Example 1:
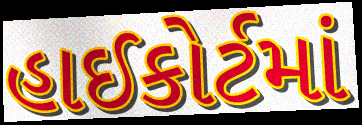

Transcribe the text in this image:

હાઈકોર્ટમાં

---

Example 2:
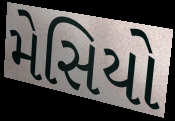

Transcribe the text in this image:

મેસિયો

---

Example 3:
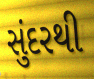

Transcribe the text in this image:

સુંદરથી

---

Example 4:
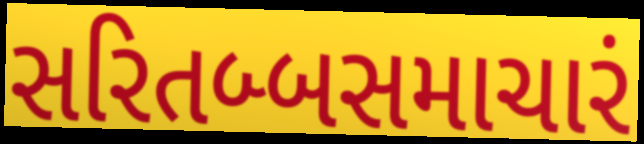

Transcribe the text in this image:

સરિતબ્બસમાચારં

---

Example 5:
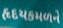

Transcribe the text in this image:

હૃદયકમળને